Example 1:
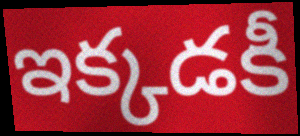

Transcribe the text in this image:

ఇక్కడకీ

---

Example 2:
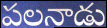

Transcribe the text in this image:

పలనాడు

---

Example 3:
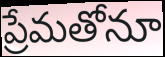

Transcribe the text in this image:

ప్రేమతోనూ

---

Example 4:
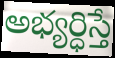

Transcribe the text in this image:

అభ్యర్ధిస్తే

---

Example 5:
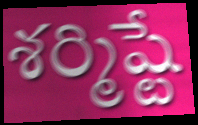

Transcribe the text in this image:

శర్మిష్టే